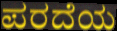
ಪರದೆಯ